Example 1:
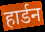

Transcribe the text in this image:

हार्डन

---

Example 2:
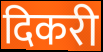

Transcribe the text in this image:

दिकरी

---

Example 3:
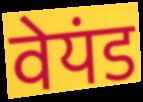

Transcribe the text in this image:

वेयंड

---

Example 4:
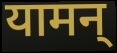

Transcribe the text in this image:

यामन्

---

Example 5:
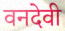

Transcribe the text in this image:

वनदेवी